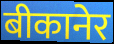
बीकानेर